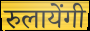
रुलायेंगी